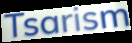
Tsarism